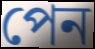
পেন